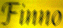
Finno